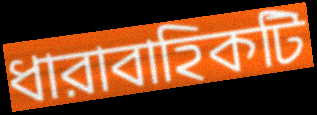
ধারাবাহিকটি